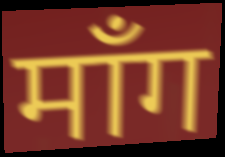
माँग